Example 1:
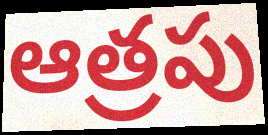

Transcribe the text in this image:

ఆత్రపు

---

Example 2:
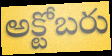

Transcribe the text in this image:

అక్టోబరు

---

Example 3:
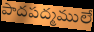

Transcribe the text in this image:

పాదపద్మములే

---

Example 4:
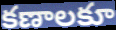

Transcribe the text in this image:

కణాలకూ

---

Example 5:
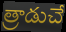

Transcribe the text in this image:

త్రాడుచే